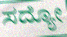
ಸದ್ಯೋ